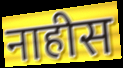
नाहीस